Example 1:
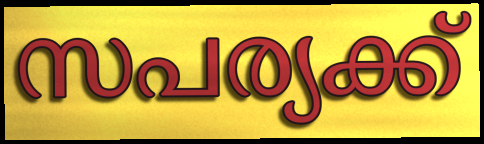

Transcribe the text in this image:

സപര്യക്ക്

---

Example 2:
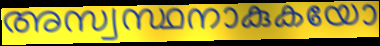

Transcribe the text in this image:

അസ്വസ്ഥനാകുകയോ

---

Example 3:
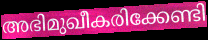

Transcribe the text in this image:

അഭിമുഖീകരിക്കേണ്ടി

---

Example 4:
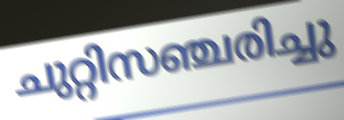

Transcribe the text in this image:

ചുറ്റിസഞ്ചരിച്ചു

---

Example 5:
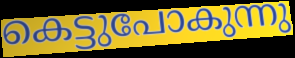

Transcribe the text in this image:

കെട്ടുപോകുന്നു